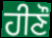
ਹੀਣੌ